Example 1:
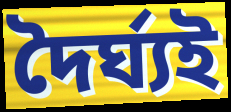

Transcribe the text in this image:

দৈৰ্ঘ্যই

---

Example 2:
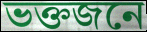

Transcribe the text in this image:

ভক্তজনে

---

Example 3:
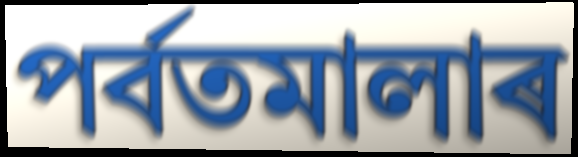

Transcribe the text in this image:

পৰ্বতমালাৰ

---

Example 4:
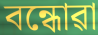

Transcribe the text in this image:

বন্ধোৱা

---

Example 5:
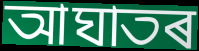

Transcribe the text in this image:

আঘাতৰ